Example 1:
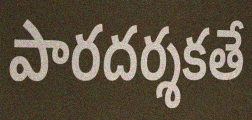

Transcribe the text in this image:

పారదర్శకతే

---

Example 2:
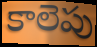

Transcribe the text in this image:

కాలెపు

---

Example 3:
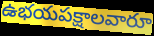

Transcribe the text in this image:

ఉభయపక్షాలవారూ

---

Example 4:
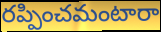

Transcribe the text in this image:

రప్పించమంటారా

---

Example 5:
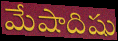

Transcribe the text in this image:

మేషాదిషు